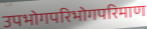
उपभोगपरिभोगपरिमाण